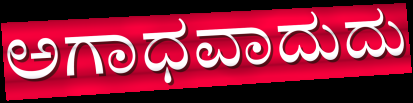
ಅಗಾಧವಾದುದು